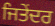
ਜਿਤੇਂਦਰ